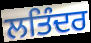
ਲਤਿੰਦਰ